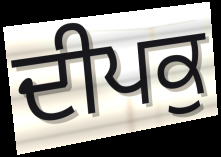
ਦੀਪਕੁ